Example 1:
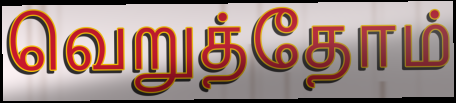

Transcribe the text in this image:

வெறுத்தோம்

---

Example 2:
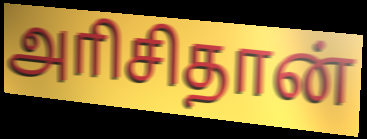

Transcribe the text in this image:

அரிசிதான்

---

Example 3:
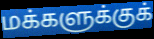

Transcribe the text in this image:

மக்களுக்குக்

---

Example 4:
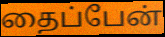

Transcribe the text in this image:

தைப்பேன்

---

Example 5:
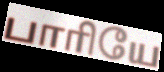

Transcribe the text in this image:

பாரியே